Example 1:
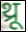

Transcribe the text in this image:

थ्रू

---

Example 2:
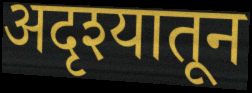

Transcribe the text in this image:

अदृश्यातून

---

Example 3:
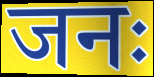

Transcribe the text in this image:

जनः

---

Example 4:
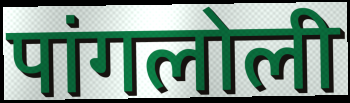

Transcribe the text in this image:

पांगलोली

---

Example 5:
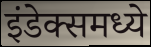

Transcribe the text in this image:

इंडेक्समध्ये